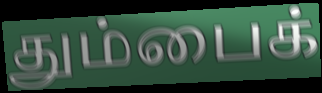
தும்பைக்